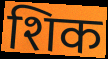
शिक